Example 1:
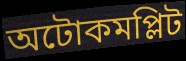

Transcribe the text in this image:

অটোকমপ্লিট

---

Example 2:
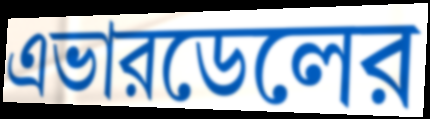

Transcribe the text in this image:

এভারডেলের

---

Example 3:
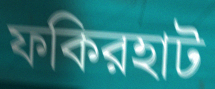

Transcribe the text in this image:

ফকিরহাট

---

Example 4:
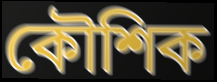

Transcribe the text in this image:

কৌশিক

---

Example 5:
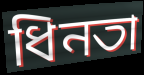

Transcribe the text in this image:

ধিনতা